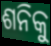
ଶନିକୁ